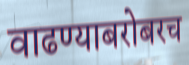
वाढण्याबरोबरच